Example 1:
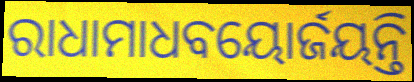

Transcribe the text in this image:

ରାଧାମାଧବୟୋର୍ଜୟନ୍ତି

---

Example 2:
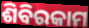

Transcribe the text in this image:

ଶିବିରକାମ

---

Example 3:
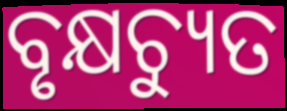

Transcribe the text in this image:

ବୃକ୍ଷଚ୍ଯୁତ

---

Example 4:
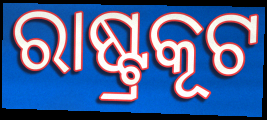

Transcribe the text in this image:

ରାଷ୍ଟ୍ରକୂଟ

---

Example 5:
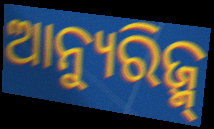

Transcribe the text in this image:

ଆନ୍ୟୁରିଜ୍ମ୍